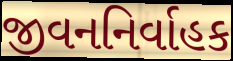
જીવનનિર્વાહક